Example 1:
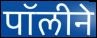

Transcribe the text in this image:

पॉलीने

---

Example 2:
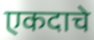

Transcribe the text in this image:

एकदाचे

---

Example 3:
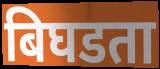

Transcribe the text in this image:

बिघडता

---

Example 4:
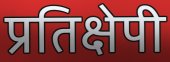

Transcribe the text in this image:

प्रतिक्षेपी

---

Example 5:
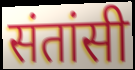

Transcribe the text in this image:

संतांसी